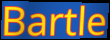
Bartle